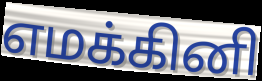
எமக்கினி